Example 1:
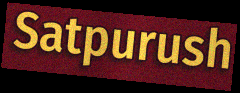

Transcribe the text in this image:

Satpurush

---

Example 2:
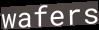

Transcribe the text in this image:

wafers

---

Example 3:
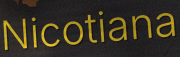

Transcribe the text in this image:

Nicotiana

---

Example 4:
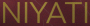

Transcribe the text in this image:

NIYATI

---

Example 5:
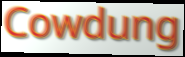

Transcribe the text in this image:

Cowdung